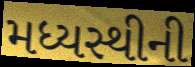
મધ્યસ્થીની